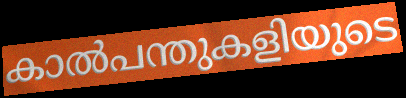
കാൽപന്തുകളിയുടെ